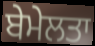
ਬੇਮੇਲਤਾ